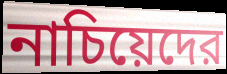
নাচিয়েদের